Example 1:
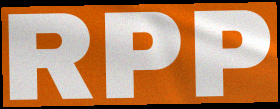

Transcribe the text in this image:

RPP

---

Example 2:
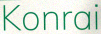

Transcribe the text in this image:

Konrai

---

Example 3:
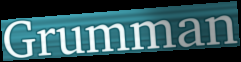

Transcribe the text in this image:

Grumman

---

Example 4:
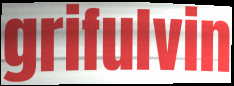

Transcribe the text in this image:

grifulvin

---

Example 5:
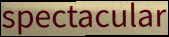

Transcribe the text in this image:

spectacular